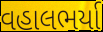
વહાલભર્યા